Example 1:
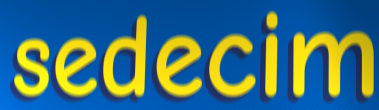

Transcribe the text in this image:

sedecim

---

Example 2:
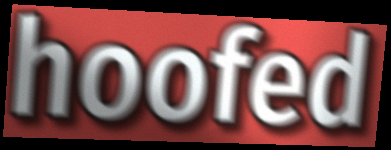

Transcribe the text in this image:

hoofed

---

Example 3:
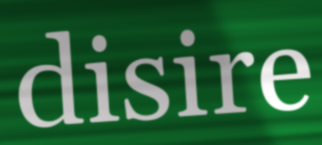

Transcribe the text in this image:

disire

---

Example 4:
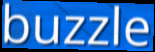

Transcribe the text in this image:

buzzle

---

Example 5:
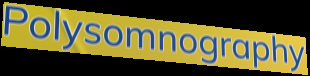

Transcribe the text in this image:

Polysomnography